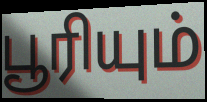
பூரியும்